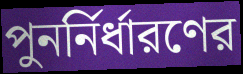
পুনর্নির্ধারণের